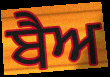
ਬੈਅ